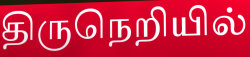
திருநெறியில்